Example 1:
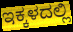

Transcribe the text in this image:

ಇಕ್ಕಳದಲ್ಲಿ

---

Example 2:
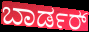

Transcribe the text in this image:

ಬಾರ್ಡರ್‍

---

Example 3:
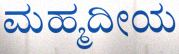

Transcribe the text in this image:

ಮಹ್ಮದೀಯ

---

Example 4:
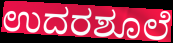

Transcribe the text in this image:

ಉದರಶೂಲೆ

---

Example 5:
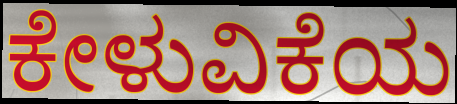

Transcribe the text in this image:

ಕೇಳುವಿಕೆಯ